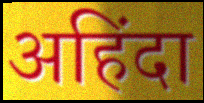
अहिंदा